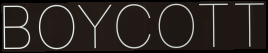
BOYCOTT